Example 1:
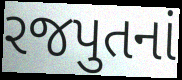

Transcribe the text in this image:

રજપુતનાં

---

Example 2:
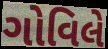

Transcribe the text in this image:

ગોવિલે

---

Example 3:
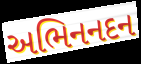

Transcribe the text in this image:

અભિનનદન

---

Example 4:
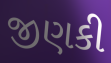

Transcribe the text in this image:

જીણકી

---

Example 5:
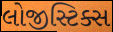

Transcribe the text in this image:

લોજીસ્ટિક્સ